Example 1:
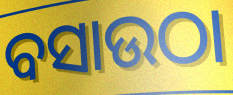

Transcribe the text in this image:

ବସାଉଠା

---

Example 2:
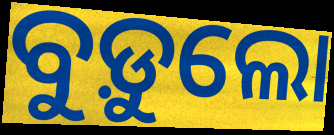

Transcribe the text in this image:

ବୁଡ଼ୁଲୋ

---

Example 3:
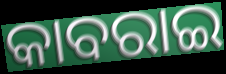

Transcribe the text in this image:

କାବରାଇ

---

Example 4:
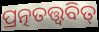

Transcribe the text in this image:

ପ୍ରତ୍ନତତ୍ତ୍ଵବିତ୍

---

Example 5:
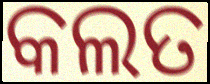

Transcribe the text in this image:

କଲତ